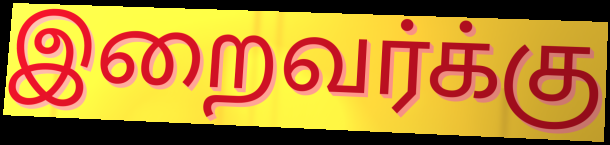
இறைவர்க்கு